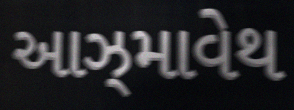
આઝ્માવેથ